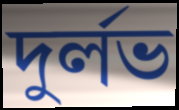
দুৰ্লভ